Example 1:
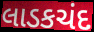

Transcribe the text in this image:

લાડકચંદ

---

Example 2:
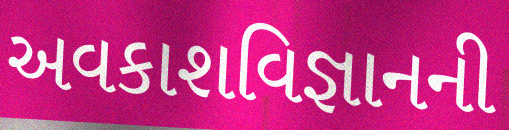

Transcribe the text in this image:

અવકાશવિજ્ઞાનની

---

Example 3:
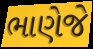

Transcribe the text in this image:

ભાણેજે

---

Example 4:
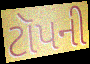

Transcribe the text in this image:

ટૉપની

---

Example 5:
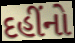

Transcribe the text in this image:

દહીંનો